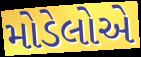
મોડેલોએ